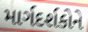
માર્ગદર્શકોને